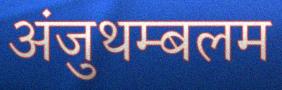
अंजुथम्बलम